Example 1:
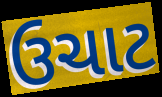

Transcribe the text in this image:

ઉચાટ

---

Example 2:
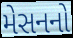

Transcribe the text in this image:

મેસનનો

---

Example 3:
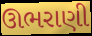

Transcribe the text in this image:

ઊભરાણી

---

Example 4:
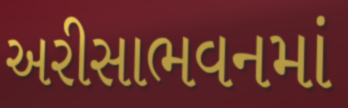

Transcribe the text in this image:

અરીસાભવનમાં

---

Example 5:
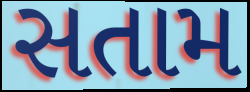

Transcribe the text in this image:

સતામ